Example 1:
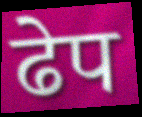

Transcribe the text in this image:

ढेप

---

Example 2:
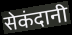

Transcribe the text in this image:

सेकंदानी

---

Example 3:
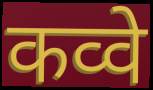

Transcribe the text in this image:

कव्वे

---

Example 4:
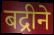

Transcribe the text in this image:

बद्रीने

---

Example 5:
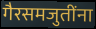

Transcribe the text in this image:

गैरसमजुतींना